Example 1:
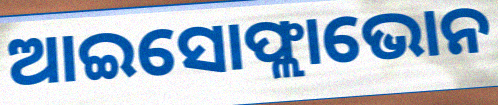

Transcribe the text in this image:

ଆଇସୋଫ୍ଲାଭୋନ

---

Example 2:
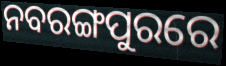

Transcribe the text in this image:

ନବରଙ୍ଗପୁରରେ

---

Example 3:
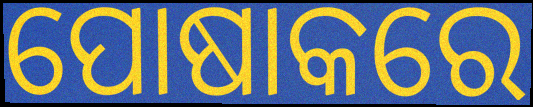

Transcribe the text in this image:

ପୋଷାକରେ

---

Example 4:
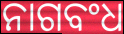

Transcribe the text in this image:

ନାଗବଂଧ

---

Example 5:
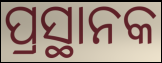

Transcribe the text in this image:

ପ୍ରସ୍ଥାନକ